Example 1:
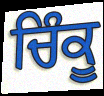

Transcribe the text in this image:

ਚਿੰਕੂ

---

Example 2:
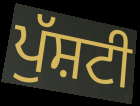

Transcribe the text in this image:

ਪੁੱਸ਼ਟੀ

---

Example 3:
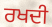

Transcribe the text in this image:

ਰਖਦੀ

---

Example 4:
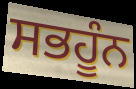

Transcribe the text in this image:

ਸਭਹੂੰਨ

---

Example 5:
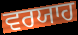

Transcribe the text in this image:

ਵਰਯਾਹ